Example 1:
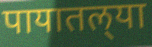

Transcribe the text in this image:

पायातल्या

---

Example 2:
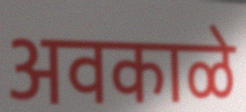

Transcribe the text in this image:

अवकाळे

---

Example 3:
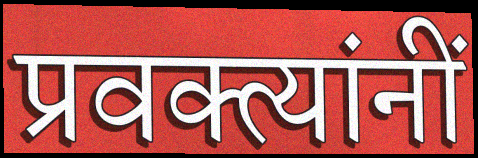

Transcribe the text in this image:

प्रवक्त्यांनीं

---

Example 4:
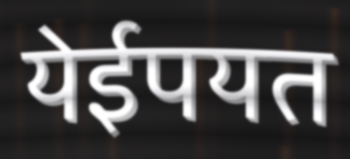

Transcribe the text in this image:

येईपयत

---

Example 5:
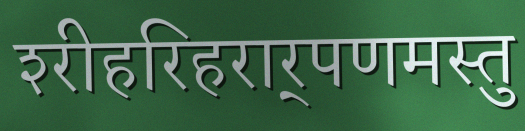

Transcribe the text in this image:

श्रीहरिहरार्पणमस्तु